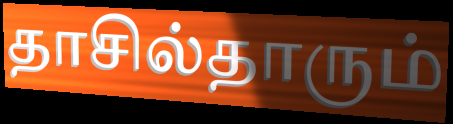
தாசில்தாரும்